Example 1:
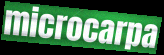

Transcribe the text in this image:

microcarpa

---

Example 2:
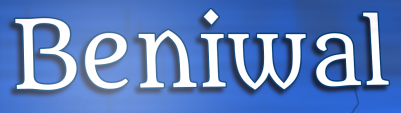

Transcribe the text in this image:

Beniwal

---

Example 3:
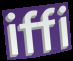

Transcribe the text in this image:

iffi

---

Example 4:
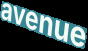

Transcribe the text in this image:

avenue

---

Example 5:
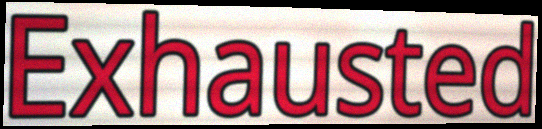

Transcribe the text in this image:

Exhausted